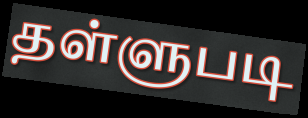
தள்ளுபடி